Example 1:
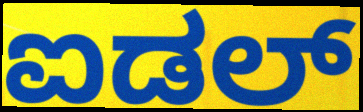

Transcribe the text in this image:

ಐಡಲ್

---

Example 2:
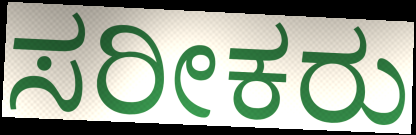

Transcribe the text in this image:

ಸರೀಕರು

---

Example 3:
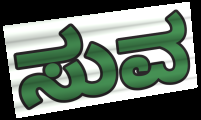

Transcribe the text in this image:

ಸುವ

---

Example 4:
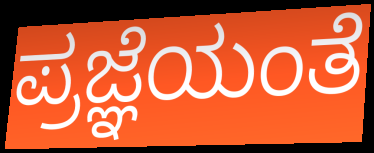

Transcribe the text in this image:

ಪ್ರಜ್ಞೆಯಂತೆ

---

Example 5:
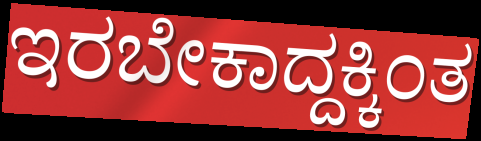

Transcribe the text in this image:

ಇರಬೇಕಾದ್ದಕ್ಕಿಂತ